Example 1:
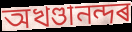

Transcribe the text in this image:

অখণ্ডানন্দৰ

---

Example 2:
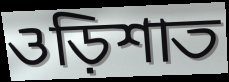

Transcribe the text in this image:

ওড়িশাত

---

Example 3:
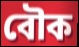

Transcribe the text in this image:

বৌক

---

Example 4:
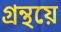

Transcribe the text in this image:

গ্ৰন্থয়ে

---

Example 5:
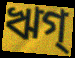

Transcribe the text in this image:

ঋগ্